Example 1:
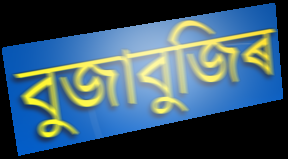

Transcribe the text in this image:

বুজাবুজিৰ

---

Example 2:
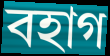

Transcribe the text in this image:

বহাগ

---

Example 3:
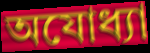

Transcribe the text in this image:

অযোধ্যা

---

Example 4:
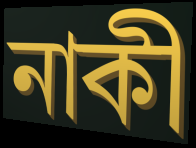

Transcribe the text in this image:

নাকী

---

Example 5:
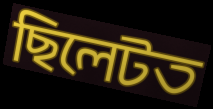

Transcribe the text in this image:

ছিলেটত